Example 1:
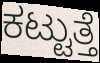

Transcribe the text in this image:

ಕಟ್ಟುತ್ತೆ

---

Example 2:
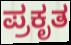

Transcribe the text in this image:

ಪ್ರಕೃತ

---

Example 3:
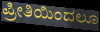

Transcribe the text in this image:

ಪ್ರೀತಿಯಿಂದಲೂ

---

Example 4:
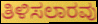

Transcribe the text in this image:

ತಿಳಿಸಲಾರವು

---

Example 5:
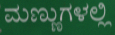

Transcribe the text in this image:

ಮಣ್ಣುಗಳಲ್ಲಿ